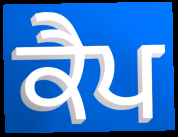
ਕੈਪ